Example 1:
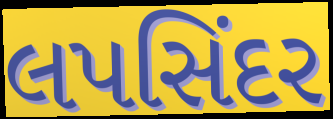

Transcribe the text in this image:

લપસિંદર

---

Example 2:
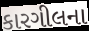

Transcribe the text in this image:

કારગીલના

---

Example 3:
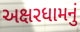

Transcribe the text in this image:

અક્ષરધામનું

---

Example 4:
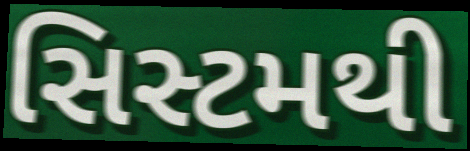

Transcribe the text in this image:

સિસ્ટમથી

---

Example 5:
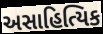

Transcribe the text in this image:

અસાહિત્યિક